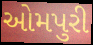
ઓમપુરી